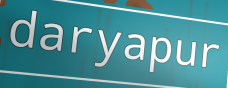
daryapur